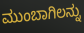
ಮುಂಬಾಗಿಲನ್ನು